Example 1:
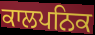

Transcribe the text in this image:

ਕਾਲਪਨਿਕ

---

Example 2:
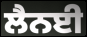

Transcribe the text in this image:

ਲੈਨਈ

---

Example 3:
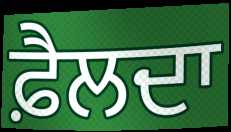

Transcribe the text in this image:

ਫ਼ੈਲਦਾ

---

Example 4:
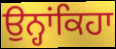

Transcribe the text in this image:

ਉਨ੍ਹਾਂਕਿਹਾ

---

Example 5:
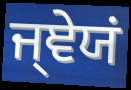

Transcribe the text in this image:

ਜ੍ਞੇਯਂ